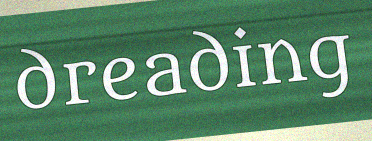
dreading